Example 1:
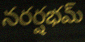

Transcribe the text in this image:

నరర్షభమ్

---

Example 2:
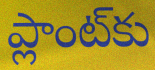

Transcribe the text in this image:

ప్లాంట్‌కు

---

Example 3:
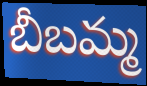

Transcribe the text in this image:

బీబమ్మ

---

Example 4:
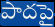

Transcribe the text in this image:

పాదపై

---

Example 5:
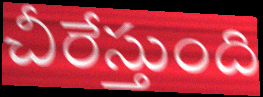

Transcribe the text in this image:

చీరేస్తుంది